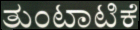
ತುಂಟಾಟಿಕೆ